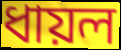
ধায়ল